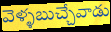
వెళ్ళబుచ్చేవాడు